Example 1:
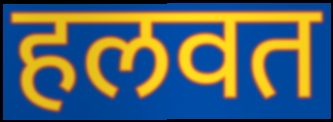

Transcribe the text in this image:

हलवत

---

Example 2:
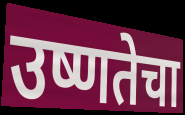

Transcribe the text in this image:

उष्णतेचा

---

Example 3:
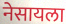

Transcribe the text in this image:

नेसायला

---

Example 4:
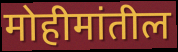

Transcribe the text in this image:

मोहीमांतील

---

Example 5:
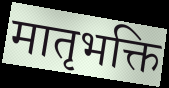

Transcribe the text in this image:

मातृभक्ति